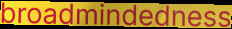
broadmindedness